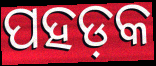
ପହଡ଼କ